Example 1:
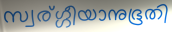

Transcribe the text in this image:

സ്വര്ഗ്ഗീയാനുഭൂതി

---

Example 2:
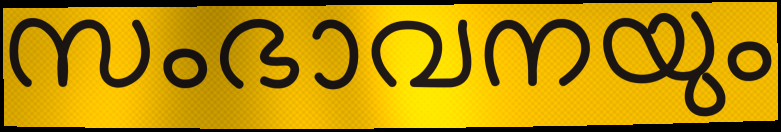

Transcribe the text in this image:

സംഭാവനയും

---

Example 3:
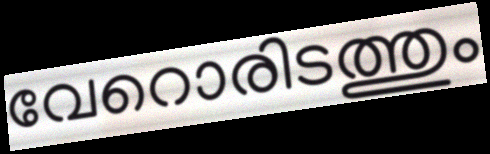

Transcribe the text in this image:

വേറൊരിടത്തും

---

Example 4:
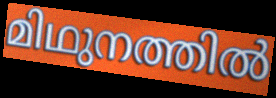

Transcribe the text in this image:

മിഥുനത്തിൽ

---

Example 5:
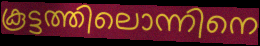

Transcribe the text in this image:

കൂട്ടത്തിലൊന്നിനെ